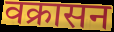
वक्रासन